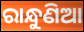
ରାନ୍ଧୁଣିଆ